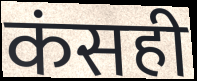
कंसही